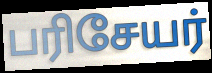
பரிசேயர்